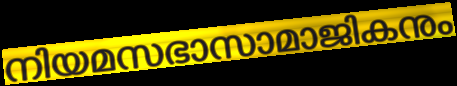
നിയമസഭാസാമാജികനും